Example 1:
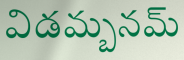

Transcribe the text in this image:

విడమ్బనమ్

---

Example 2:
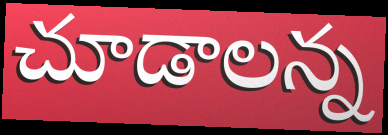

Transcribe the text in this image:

చూడాలన్న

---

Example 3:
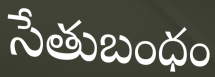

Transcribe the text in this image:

సేతుబంధం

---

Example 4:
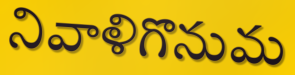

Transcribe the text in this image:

నివాళిగొనుమ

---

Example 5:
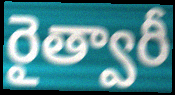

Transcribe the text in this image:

రైత్వారీ